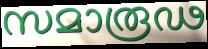
സമാരൂഢ